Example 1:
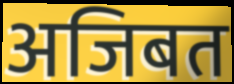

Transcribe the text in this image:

अजिबत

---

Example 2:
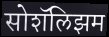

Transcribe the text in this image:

सोशॅलिझम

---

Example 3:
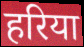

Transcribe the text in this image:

हरिया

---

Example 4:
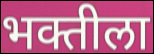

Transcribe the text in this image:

भक्तीला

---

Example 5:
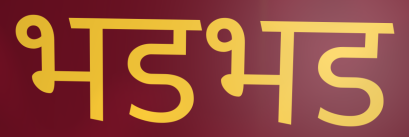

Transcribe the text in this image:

भडभड